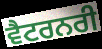
ਵੈਟਰਨਰੀ